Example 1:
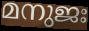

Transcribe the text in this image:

മനുജഃ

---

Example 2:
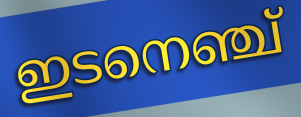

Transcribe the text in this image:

ഇടനെഞ്ച്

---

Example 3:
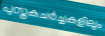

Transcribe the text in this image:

പുസ്തകചർച്ചകളിലും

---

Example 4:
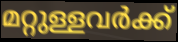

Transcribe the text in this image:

മറ്റുള്ളവർക്ക്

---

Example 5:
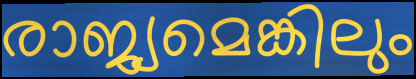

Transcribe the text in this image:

രാജ്യമെങ്കിലും